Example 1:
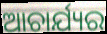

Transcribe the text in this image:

ଆଚାର୍ଯ୍ୟର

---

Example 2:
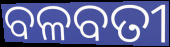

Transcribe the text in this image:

ବଳବତୀ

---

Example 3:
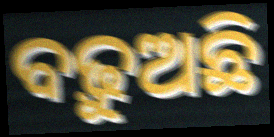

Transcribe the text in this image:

ବଢ଼ୁଅଛି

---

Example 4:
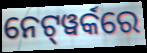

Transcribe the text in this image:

ନେଟ୍‍ୱର୍କରେ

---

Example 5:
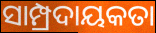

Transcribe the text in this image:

ସାମ୍ପ୍ରଦାୟକତା